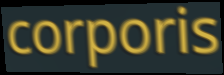
corporis